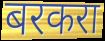
बरकरा